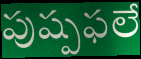
పుష్పఫలే